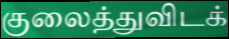
குலைத்துவிடக்